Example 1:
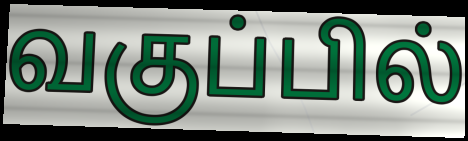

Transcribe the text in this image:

வகுப்பில்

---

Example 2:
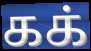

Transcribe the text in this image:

கக்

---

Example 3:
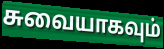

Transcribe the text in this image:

சுவையாகவும்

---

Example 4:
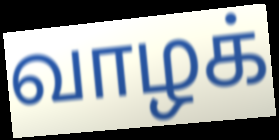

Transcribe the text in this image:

வாழக்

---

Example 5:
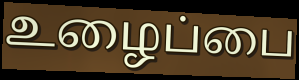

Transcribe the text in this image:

உழைப்பை